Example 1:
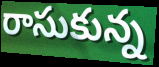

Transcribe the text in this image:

రాసుకున్న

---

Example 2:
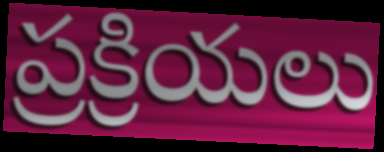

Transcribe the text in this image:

ప్రక్రియలు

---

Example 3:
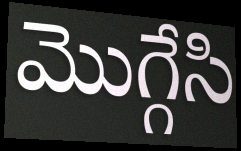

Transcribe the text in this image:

మొగ్గేసి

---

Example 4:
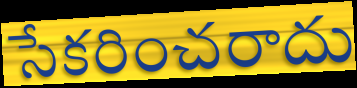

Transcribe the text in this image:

సేకరించరాదు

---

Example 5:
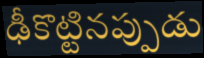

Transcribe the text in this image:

ఢీకొట్టినప్పుడు